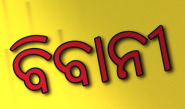
ବିବାନୀ